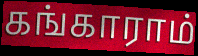
கங்காராம்